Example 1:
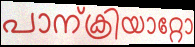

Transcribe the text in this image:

പാന്ക്രിയാറ്റോ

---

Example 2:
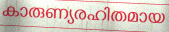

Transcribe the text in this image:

കാരുണ്യരഹിതമായ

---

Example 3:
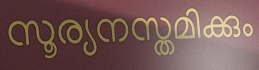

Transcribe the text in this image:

സൂര്യനസ്തമിക്കും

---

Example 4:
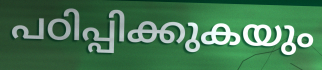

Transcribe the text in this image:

പഠിപ്പിക്കുകയും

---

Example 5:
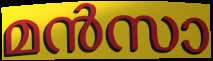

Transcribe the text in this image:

മൻസാ